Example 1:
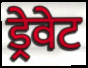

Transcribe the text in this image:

ड्रेवेट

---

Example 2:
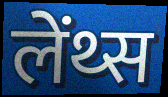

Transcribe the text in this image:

लेंथ्स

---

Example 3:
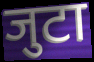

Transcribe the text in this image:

जुटा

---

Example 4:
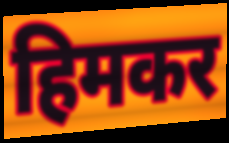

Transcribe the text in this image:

हिमकर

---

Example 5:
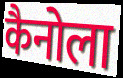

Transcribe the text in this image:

कैनोला